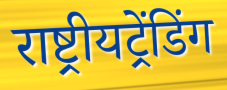
राष्ट्रीयट्रेंडिंग